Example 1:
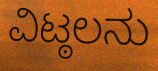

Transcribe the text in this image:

ವಿಟ್ಠಲನು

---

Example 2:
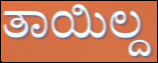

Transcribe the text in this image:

ತಾಯಿಲ್ದ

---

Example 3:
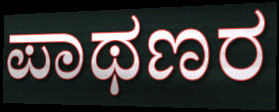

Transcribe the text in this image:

ಪಾಥಣರ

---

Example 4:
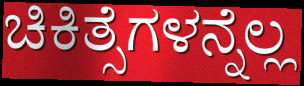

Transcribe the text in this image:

ಚಿಕಿತ್ಸೆಗಳನ್ನೆಲ್ಲ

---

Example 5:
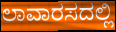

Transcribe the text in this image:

ಲಾವಾರಸದಲ್ಲಿ